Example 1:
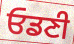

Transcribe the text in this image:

ਓਡਣੀ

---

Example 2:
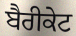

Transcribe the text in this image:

ਬੈਰੀਕੇਟ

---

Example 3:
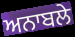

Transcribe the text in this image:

ਅਨਾਬਲੇ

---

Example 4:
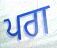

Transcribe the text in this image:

ਪਗ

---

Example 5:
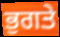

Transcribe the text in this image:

ਭੁਗਤੇ